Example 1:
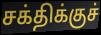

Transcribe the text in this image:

சக்திக்குச்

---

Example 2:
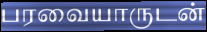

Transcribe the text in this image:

பரவையாருடன்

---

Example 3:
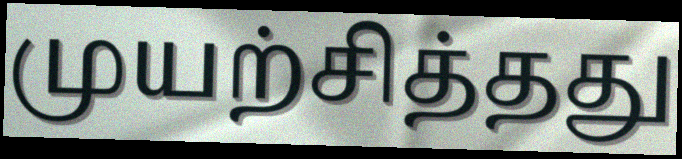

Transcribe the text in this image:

முயற்சித்தது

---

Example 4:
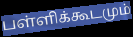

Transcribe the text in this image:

பள்ளிக்கூடமும்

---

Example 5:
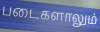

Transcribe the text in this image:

படைகளாலும்